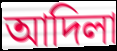
আদিলা